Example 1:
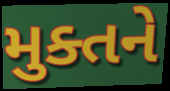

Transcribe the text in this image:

મુક્તને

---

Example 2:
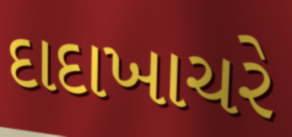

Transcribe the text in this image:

દાદાખાચરે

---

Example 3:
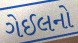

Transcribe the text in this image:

ગેઈલનો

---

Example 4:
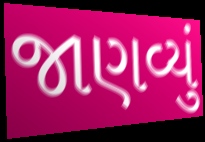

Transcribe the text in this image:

જાણવ્યું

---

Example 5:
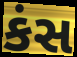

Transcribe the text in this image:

કંસ